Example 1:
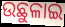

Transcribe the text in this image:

ଉଛୁଳାଇ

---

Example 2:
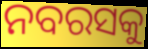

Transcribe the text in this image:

ନବରସକୁ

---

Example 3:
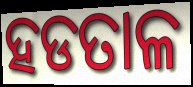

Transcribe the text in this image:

ହଡତାଳ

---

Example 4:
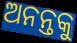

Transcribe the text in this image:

ଅନନ୍ତକୁ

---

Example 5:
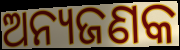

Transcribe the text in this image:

ଅନ୍ୟଜଣକ